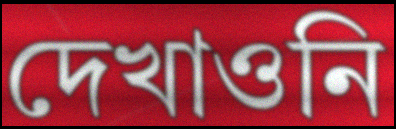
দেখাওনি